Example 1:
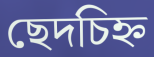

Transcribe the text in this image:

ছেদচিহ্ন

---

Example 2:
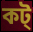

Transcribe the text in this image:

কট্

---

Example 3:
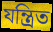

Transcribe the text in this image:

যন্ত্রিত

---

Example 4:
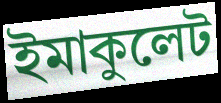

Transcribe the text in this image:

ইমাকুলেট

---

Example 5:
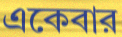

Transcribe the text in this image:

একেবার